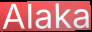
Alaka